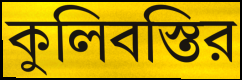
কুলিবস্তির